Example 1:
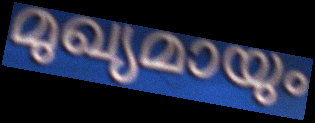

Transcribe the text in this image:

മുഖ്യമായും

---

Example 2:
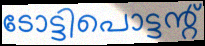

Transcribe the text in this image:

ടോട്ടിപൊട്ടന്റ്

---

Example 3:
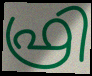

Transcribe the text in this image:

ഫ്രി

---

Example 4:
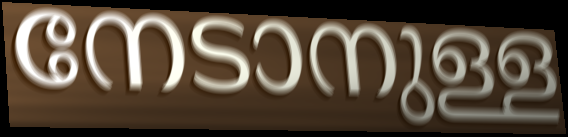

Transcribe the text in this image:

നേടാനുള്ള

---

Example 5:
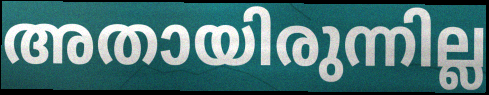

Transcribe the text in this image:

അതായിരുന്നില്ല